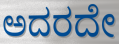
ಅದರದೇ